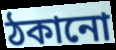
ঠকানো